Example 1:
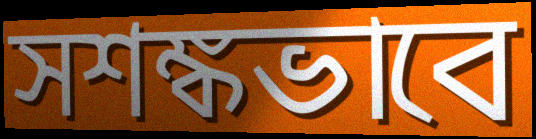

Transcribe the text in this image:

সশঙ্কভাবে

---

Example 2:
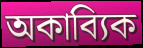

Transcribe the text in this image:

অকাব্যিক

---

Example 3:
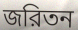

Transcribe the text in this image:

জরিতন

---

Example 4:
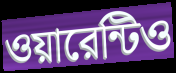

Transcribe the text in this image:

ওয়ারেন্টিও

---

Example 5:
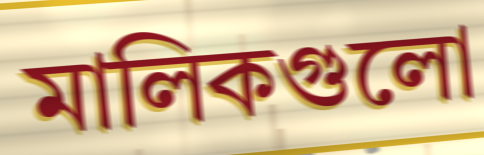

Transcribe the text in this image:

মালিকগুলো